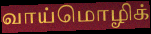
வாய்மொழிக்